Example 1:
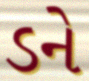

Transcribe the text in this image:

ડને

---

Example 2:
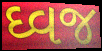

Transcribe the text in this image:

ઘ્વજ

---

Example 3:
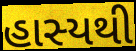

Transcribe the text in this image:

હાસ્યથી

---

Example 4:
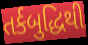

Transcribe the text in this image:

તર્કબુદ્ધિથી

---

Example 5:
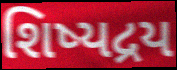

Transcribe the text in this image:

શિષ્યદ્રય